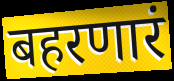
बहरणारं